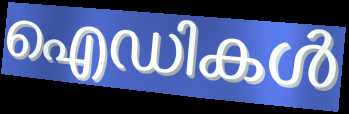
ഐഡികൾ